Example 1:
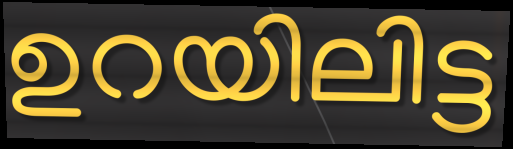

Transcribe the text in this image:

ഉറയിലിട്ട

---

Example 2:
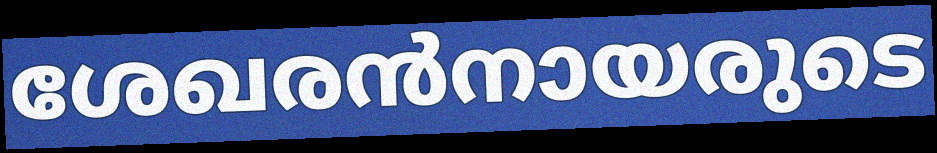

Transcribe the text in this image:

ശേഖരൻനായരുടെ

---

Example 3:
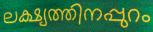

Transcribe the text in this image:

ലക്ഷ്യത്തിനപ്പുറം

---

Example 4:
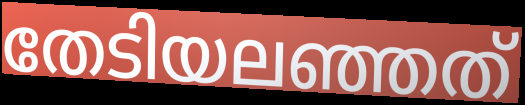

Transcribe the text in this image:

തേടിയലഞ്ഞത്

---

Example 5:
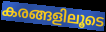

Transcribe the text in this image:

കരങ്ങളിലൂടെ